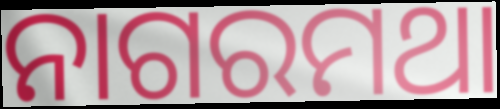
ନାଗରମଥା